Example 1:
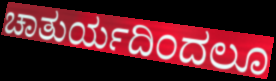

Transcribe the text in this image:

ಚಾತುರ್ಯದಿಂದಲೂ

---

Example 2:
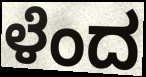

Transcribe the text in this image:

ಳೆಂದ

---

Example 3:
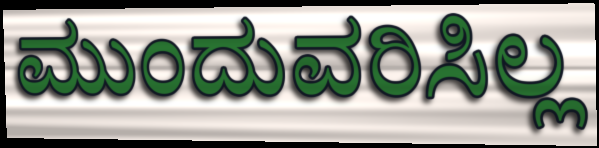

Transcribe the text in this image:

ಮುಂದುವರಿಸಿಲ್ಲ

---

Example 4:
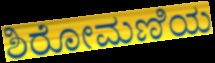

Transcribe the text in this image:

ಶಿರೋಮಣಿಯ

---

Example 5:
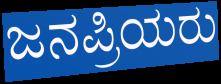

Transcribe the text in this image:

ಜನಪ್ರಿಯರು